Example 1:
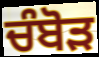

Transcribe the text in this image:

ਚੰਬੋੜ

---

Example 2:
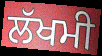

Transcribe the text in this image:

ਲੱਖਮੀ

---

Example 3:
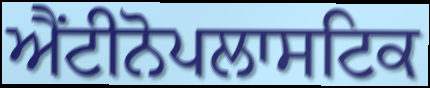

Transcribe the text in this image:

ਐਂਟੀਨੋਪਲਾਸਟਿਕ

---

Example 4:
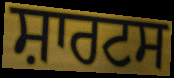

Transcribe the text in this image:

ਸ਼ਾਰਟਸ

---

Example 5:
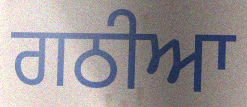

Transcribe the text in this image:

ਗਠੀਆ